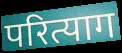
परित्याग